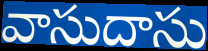
వాసుదాసు